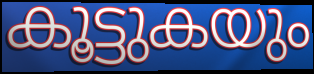
കൂട്ടുകയും